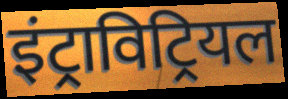
इंट्राविट्रियल